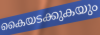
കൈയടക്കുകയും